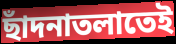
ছাঁদনাতলাতেই